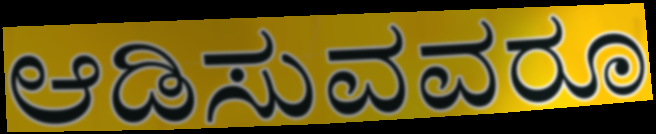
ಆಡಿಸುವವರೂ